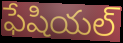
ఫేషియల్